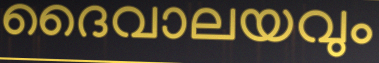
ദൈവാലയവും